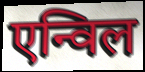
एन्विल